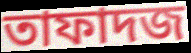
তাফাদজ